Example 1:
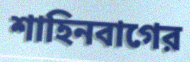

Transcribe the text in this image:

শাহিনবাগের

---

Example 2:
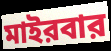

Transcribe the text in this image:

মাইরবার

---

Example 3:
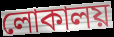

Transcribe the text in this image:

লোকালয়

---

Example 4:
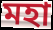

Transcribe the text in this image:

মহা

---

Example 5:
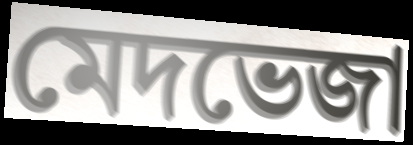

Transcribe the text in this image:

মেদভেজা